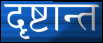
दृष्टान्त